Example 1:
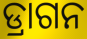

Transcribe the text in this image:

ଡ୍ରାଗନ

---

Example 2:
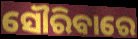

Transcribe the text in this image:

ସୌରିବାରେ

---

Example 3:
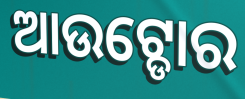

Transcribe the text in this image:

ଆଉଟ୍ଡୋର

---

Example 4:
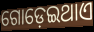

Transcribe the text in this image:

ଗୋଡ଼େଇଥାଏ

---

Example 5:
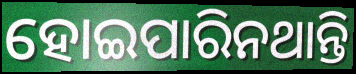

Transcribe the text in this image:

ହୋଇପାରିନଥାନ୍ତି